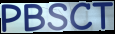
PBSCT